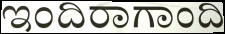
ಇಂದಿರಾಗಾಂದಿ